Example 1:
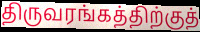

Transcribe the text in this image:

திருவரங்கத்திற்குத்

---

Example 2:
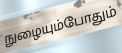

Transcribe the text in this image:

நுழையும்போதும்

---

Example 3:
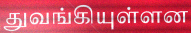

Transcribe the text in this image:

துவங்கியுள்ளன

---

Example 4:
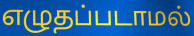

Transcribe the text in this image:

எழுதப்படாமல்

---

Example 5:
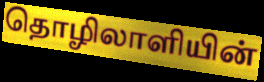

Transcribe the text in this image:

தொழிலாளியின்